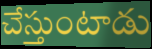
చేస్తుంటాడు